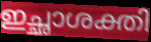
ഇച്ഛാശക്തി